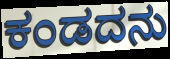
ಕಂಡದನು